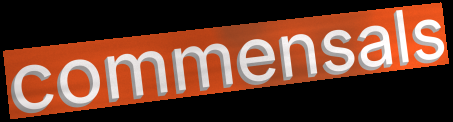
commensals